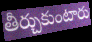
తీర్చుకుంటారు